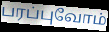
பரப்புவோம்